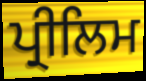
ਪ੍ਰੀਲਿਮ